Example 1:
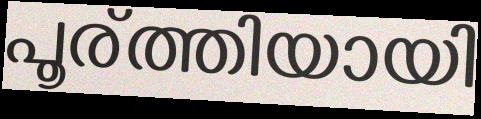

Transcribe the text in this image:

പൂര്ത്തിയായി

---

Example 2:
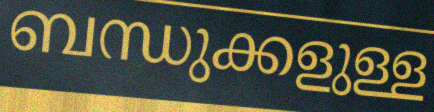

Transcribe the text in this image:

ബന്ധുക്കളുള്ള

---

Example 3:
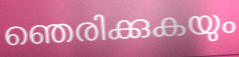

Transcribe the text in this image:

ഞെരിക്കുകയും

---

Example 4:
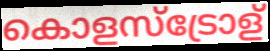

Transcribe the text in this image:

കൊളസ്ട്രോള്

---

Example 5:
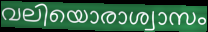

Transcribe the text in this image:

വലിയൊരാശ്വാസം